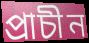
প্ৰাচীন